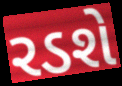
રડશે